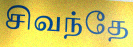
சிவந்தே